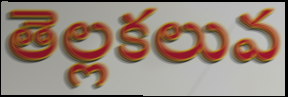
తెల్లకలువ